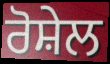
ਰੋਸ਼ੇਲ